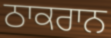
ਠਾਕਰਾਨ